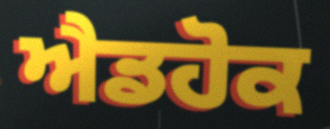
ਐਡਹੋਕ